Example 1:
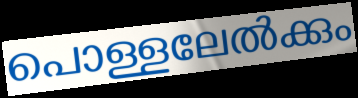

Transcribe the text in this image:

പൊള്ളലേൽക്കും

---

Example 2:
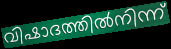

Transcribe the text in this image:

വിഷാദത്തിൽനിന്ന്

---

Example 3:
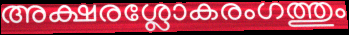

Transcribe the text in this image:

അക്ഷരശ്ലോകരംഗത്തും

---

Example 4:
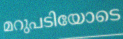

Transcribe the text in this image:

മറുപടിയോടെ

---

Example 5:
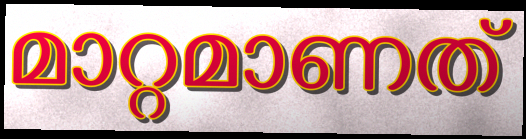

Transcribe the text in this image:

മാറ്റമാണത്